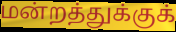
மன்றத்துக்குக்